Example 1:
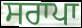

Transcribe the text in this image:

ਸਰਾਪਾ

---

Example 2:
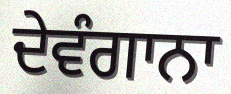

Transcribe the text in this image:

ਦੇਵੰਗਾਨਾ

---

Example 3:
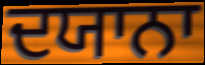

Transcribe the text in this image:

ਦਯਾਨਾ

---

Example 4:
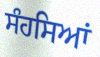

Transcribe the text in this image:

ਸੰਹਸਿਆਂ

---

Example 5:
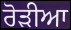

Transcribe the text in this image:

ਰੋੜੀਆ